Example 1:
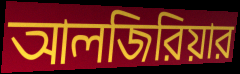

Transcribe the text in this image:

আলজিরিয়ার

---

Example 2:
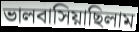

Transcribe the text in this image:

ভালবাসিয়াছিলাম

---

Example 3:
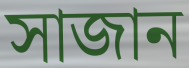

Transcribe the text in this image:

সাজান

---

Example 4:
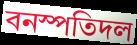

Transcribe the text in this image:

বনস্পতিদল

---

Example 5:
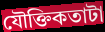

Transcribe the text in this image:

যৌক্তিকতাটা